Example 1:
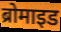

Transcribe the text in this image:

ब्रोमाइड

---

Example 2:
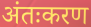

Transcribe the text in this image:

अंतःकरण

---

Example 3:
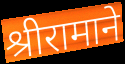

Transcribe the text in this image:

श्रीरामाने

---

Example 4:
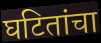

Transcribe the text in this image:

घटितांचा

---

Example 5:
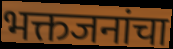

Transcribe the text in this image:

भक्तजनांचा